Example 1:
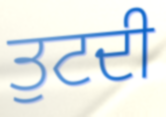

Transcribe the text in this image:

ਤੁਟਦੀ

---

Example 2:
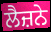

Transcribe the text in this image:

ਲੈਜ਼ਨੇ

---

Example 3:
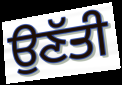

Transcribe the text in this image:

ਉਣੱਤੀ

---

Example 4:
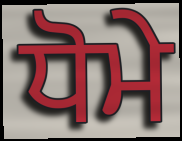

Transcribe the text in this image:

ਧੋਮੇ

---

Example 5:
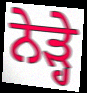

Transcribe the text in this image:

ਨੇੜ੍ਹੇ